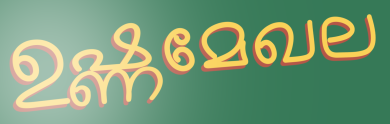
ഉഷ്ണമേഖല